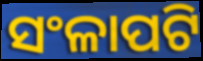
ସଂଳାପଟି